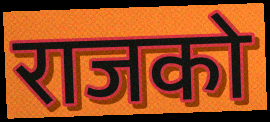
राजको